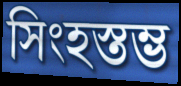
সিংহস্তম্ভ